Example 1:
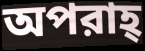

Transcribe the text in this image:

অপরাহ্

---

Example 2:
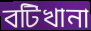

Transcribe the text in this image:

বটিখানা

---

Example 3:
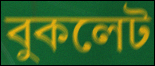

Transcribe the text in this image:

বুকলেট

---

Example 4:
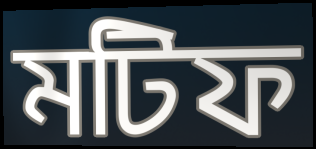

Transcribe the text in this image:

মটিফ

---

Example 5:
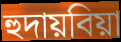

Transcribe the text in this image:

হুদায়বিয়া